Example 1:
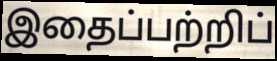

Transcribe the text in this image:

இதைப்பற்றிப்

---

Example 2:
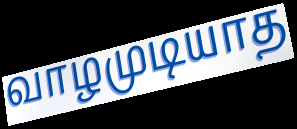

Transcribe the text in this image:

வாழமுடியாத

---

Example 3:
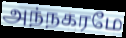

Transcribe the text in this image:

அந்நகரமே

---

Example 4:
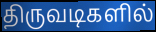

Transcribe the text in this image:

திருவடிகளில்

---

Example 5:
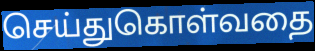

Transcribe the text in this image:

செய்துகொள்வதை